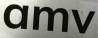
amv